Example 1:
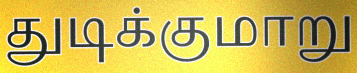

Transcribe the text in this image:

துடிக்குமாறு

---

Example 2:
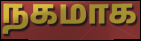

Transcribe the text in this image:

நகமாக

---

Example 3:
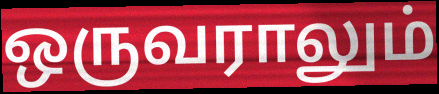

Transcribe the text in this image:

ஒருவராலும்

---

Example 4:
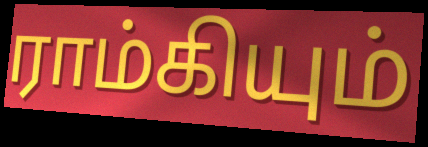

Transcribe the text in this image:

ராம்கியும்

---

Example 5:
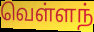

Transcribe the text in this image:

வெள்ளந்